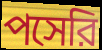
পসেরি